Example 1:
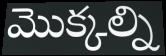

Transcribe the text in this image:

మొక్కల్ని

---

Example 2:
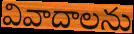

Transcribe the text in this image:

వివాదాలను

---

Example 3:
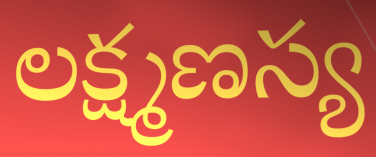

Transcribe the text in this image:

లక్ష్మణస్య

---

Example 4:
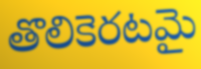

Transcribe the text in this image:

తొలికెరటమై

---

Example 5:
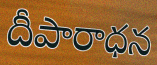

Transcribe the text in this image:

దీపారాధన